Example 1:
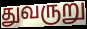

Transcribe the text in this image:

துவருறு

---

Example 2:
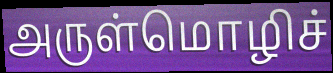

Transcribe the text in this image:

அருள்மொழிச்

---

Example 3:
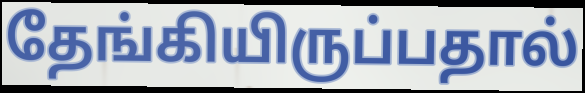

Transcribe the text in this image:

தேங்கியிருப்பதால்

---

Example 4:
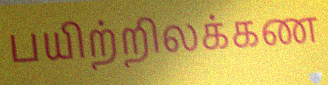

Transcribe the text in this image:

பயிற்றிலக்கண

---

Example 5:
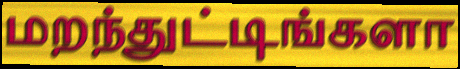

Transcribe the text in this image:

மறந்துட்டிங்களா